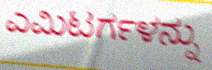
ಎಮಿಟರ್ಗಳನ್ನು